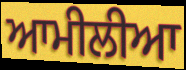
ਆਮੀਲੀਆ